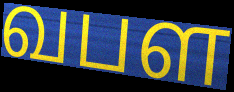
வபள